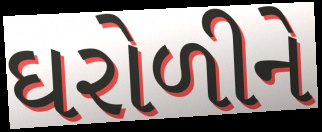
ઘરોળીને